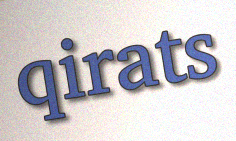
qirats